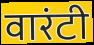
वारंटी